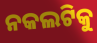
ନକଲଟିକୁ